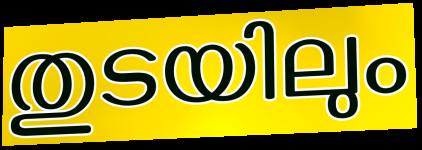
തുടയിലും